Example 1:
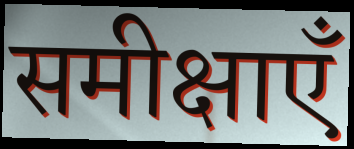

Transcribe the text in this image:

समीक्षाएँ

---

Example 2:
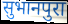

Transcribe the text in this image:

सुभानपुरा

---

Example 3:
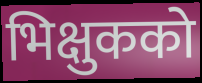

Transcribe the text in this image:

भिक्षुकको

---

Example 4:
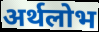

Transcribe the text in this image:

अर्थलोभ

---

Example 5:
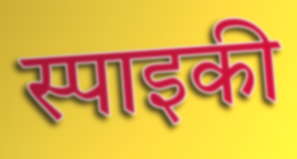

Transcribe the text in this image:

स्पाइकी